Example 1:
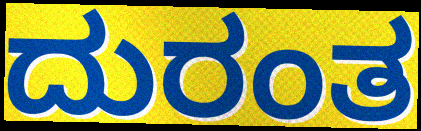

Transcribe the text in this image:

ದುರಂತ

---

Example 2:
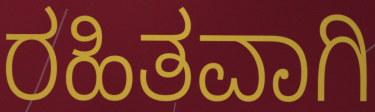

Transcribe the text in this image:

ರಹಿತವಾಗಿ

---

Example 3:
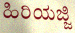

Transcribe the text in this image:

ಹಿರಿಯಜ್ಜಿ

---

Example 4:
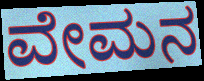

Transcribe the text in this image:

ವೇಮನ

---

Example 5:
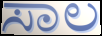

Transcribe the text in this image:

ಸಾಲ